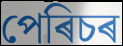
পেৰিচৰ